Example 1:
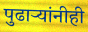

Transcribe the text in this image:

पुढाऱ्यांनीही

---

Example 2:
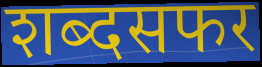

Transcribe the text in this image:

शब्दसफर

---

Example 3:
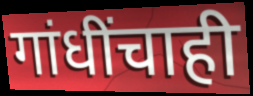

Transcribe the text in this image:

गांधींचाही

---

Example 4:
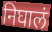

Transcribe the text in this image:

निघालं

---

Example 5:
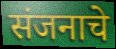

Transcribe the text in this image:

संजनाचे